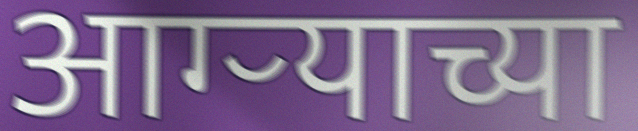
आग्ऱ्याच्या